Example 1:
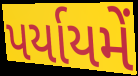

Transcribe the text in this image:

પર્યાયમેં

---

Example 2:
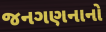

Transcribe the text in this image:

જનગણનાનો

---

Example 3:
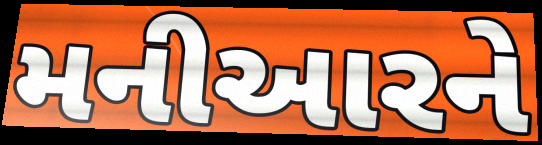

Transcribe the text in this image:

મનીઆરને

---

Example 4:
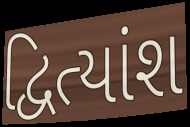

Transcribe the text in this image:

દ્વિત્યાંશ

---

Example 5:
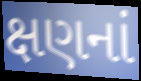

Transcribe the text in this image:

ક્ષણનાં